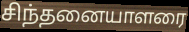
சிந்தனையாளரை